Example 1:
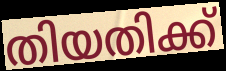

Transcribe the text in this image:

തിയതിക്ക്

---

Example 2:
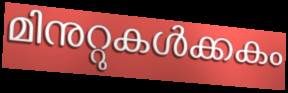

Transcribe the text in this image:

മിനുറ്റുകൾക്കകം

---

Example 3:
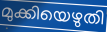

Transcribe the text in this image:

മുക്കിയെഴുതി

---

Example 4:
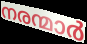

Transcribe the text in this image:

നരന്മാർ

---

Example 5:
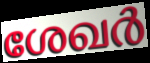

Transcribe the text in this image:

ശേഖർ